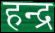
हन्द्र